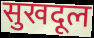
सुखदूल